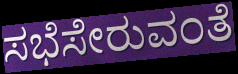
ಸಭೆಸೇರುವಂತೆ